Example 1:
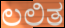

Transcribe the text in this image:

ಲಲಿತ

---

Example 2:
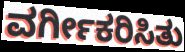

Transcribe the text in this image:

ವರ್ಗೀಕರಿಸಿತು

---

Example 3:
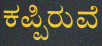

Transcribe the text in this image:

ಕಪ್ಪಿರುವೆ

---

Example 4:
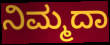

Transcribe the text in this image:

ನಿಮ್ಮದಾ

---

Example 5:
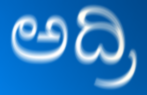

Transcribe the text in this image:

ಅದ್ರಿ